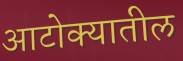
आटोक्यातील